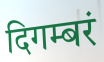
दिगम्बरं